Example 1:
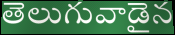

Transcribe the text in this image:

తెలుగువాడైన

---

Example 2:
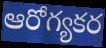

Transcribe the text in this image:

ఆరోగ్యకర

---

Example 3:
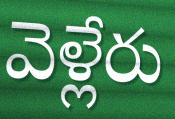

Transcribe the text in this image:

వెళ్లేరు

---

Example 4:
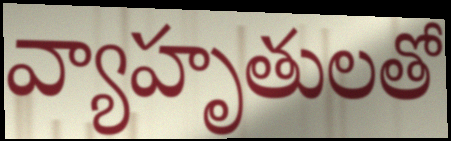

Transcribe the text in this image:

వ్యాహృతులతో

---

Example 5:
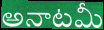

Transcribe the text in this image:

అనాటమీ